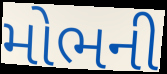
મોભની